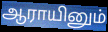
ஆராயினும்